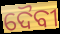
ଦୈବୀ